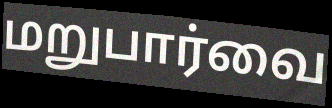
மறுபார்வை